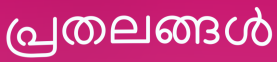
പ്രതലങ്ങൾ